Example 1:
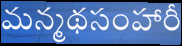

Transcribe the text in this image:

మన్మథసంహారీ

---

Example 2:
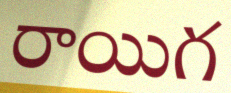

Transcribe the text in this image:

రాయిగ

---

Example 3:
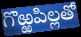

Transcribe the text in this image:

గొఱ్ఱపిల్లతో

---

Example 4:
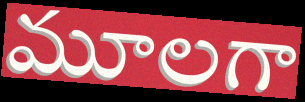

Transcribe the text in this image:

మూలగా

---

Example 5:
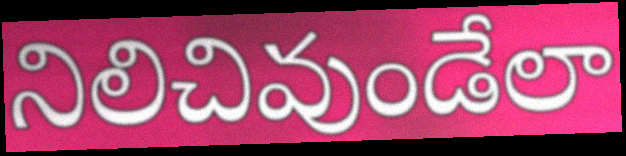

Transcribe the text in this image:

నిలిచివుండేలా